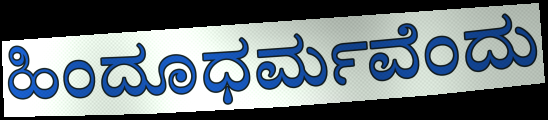
ಹಿಂದೂಧರ್ಮವೆಂದು